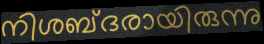
നിശബ്ദരായിരുന്നു